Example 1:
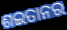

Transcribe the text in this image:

ଶଇତାନର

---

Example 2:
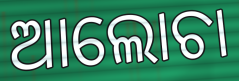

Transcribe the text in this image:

ଆଲୋଚା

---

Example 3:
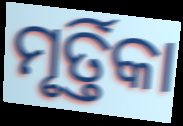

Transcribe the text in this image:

ମୃର୍ତ୍ତିକା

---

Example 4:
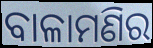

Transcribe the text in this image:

ବାଳାମଣିର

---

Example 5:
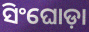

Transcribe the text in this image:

ସିଂଘୋଡ଼ା